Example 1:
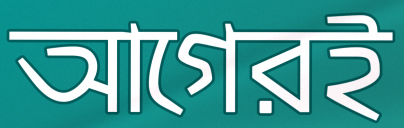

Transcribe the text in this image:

আগেরই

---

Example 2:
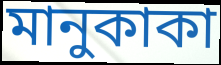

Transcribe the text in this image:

মানুকাকা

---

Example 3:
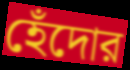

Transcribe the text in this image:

হেঁদোর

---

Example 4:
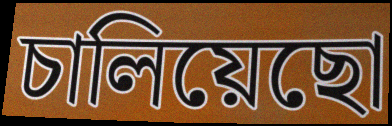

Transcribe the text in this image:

চালিয়েছো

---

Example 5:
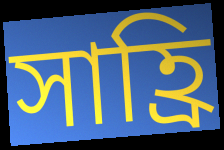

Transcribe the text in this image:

সাহ্রি